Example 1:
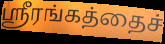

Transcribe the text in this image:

ஸ்ரீரங்கத்தைச்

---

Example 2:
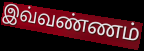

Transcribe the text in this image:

இவ்வண்ணம்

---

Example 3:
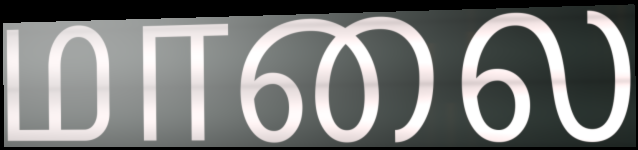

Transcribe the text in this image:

மாலை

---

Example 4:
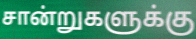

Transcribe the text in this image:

சான்றுகளுக்கு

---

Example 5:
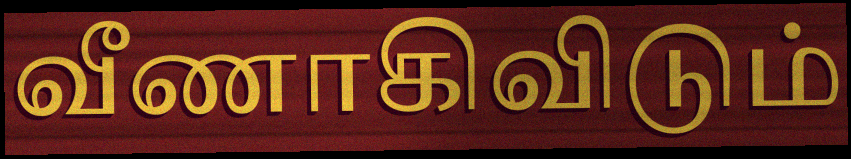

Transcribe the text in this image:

வீணாகிவிடும்